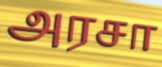
அரசா